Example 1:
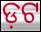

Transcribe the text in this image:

ଡ଼ଟ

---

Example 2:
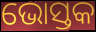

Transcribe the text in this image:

ଭୋସ୍ତକ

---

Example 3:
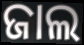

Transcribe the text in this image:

ଜାଲ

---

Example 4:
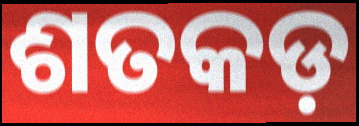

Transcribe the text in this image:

ଶତକଡ଼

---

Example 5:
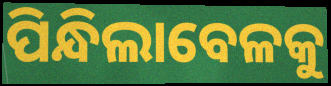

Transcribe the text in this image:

ପିନ୍ଧିଲାବେଳକୁ